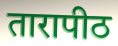
तारापीठ